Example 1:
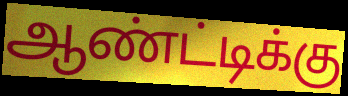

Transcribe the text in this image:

ஆண்ட்டிக்கு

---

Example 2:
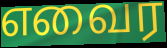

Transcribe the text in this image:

எவைர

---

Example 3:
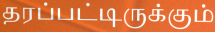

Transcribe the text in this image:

தரப்பட்டிருக்கும்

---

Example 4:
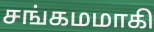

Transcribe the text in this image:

சங்கமமாகி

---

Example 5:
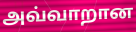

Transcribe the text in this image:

அவ்வாறான